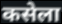
कसेला